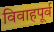
विवाहपूर्व